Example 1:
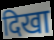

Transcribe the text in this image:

दिखा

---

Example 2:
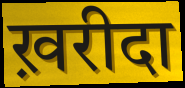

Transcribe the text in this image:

ख़रीदा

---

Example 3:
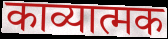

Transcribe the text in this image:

काव्यात्मक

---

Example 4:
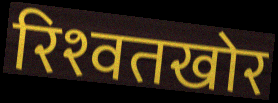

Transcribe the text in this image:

रिश्वतखोर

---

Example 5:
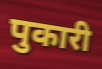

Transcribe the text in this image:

पुकारी